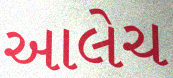
આલેચ